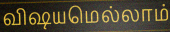
விஷயமெல்லாம்